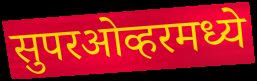
सुपरओव्हरमध्ये